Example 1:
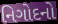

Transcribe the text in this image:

નિગોદનો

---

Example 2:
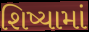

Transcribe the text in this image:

શિષ્યામાં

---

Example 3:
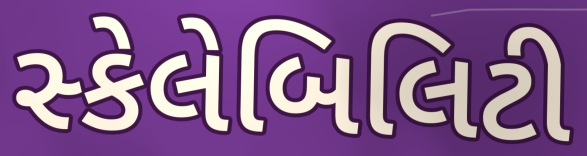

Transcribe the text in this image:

સ્કેલેબિલિટી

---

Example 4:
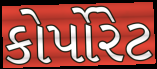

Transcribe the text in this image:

કોર્પોરેટ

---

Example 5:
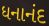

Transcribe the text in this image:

ધનાનંદ